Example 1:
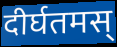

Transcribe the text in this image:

दीर्घतमस्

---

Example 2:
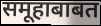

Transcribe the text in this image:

समूहाबाबत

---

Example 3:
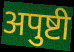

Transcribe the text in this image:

अपुष्टी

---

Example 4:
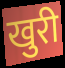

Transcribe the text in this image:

खुरी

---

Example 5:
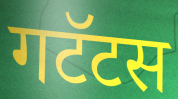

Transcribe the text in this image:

गटॅटस